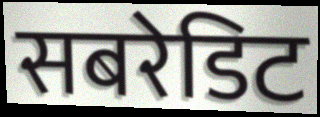
सबरेडिट